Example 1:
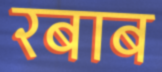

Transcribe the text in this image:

रबाब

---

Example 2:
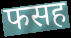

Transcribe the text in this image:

फसह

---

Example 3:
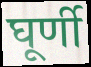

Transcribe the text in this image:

घूर्णी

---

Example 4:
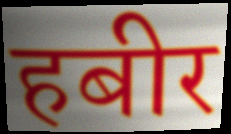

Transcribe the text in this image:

हबीर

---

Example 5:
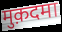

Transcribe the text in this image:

मुक़दमा